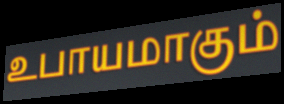
உபாயமாகும்